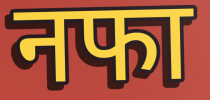
नफा